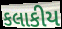
કલાકીય